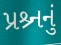
પ્રશ્ર્નનું